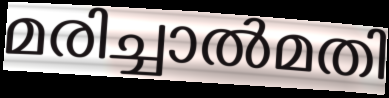
മരിച്ചാൽമതി